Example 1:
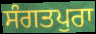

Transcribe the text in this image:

ਸੰਗਤਪੁਰਾ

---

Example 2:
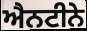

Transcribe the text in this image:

ਐਨਟੀਨੇ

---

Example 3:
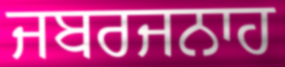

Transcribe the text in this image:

ਜਬਰਜਨਾਹ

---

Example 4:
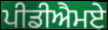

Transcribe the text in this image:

ਪੀਡੀਐਮਏ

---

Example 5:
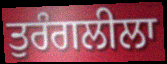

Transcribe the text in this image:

ਤੁਰੰਗਲੀਲਾ